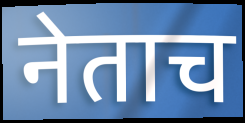
नेताच